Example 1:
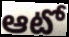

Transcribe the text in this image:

ఆటో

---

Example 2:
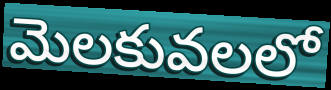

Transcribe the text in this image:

మెలకువలలో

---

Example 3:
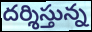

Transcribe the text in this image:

దర్శిస్తున్న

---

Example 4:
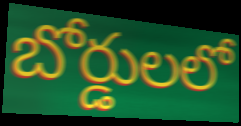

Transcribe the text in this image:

బోర్డులలో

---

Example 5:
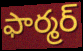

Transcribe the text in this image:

ఫార్మర్